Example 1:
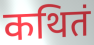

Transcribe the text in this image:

कथितं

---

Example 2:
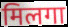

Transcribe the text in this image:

मिलगा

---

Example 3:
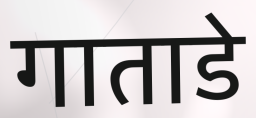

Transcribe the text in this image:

गाताडे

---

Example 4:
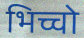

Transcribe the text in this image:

भिच्चो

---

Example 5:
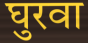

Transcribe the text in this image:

घुरवा